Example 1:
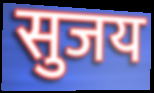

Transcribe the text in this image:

सुजय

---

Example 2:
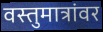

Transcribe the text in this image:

वस्तुमात्रांवर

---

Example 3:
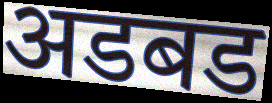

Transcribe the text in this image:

अडबड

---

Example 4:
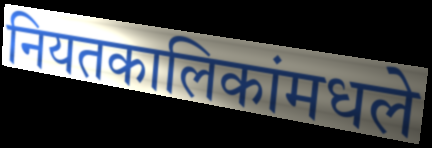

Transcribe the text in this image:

नियतकालिकांमधले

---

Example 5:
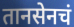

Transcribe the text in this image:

तानसेनचं